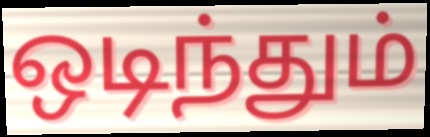
ஒடிந்தும்